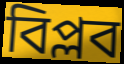
বিপ্লব